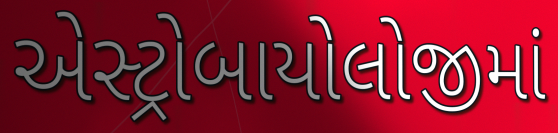
એસ્ટ્રોબાયોલોજીમાં